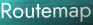
Routemap